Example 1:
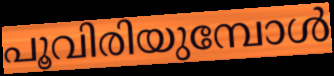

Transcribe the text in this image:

പൂവിരിയുമ്പോൾ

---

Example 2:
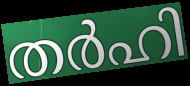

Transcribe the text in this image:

തർഹി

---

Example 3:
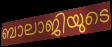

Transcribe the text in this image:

ബാലാജിയുടെ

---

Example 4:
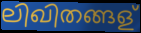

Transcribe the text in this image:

ലിഖിതങ്ങള്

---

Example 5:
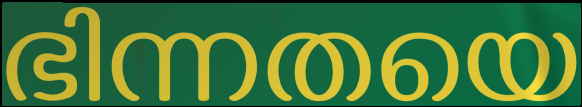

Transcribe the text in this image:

ഭിന്നതയെ